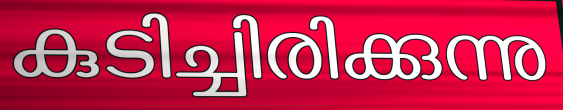
കുടിച്ചിരിക്കുന്നു